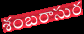
శంబరాసుర